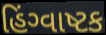
હિંગ્વાષ્ટક